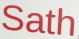
Sath